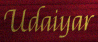
Udaiyar